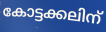
കോട്ടക്കലിന്